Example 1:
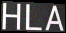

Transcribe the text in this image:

HLA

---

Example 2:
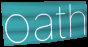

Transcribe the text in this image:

oath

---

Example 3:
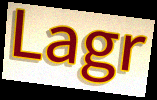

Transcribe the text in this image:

Lagr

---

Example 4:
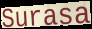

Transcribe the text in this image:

Surasa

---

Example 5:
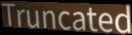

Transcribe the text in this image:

Truncated